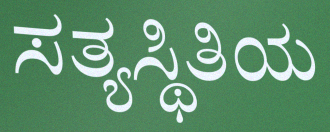
ಸತ್ಯಸ್ಥಿತಿಯ